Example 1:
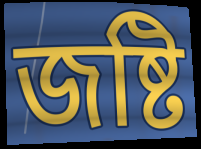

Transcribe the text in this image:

জষ্টি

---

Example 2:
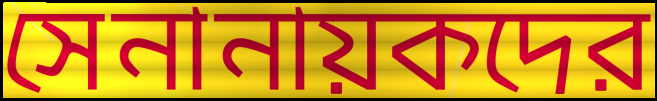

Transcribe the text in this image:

সেনানায়কদের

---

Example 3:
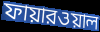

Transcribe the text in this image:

ফায়ারওয়াল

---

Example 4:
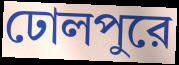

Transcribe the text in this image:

ঢোলপুরে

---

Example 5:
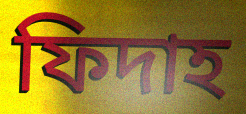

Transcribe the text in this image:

ফিদাহ